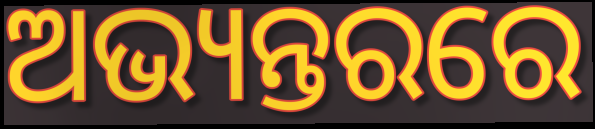
ଅଭ୍ୟନ୍ତରରେ